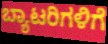
ಬ್ಯಾಟರಿಗಳಿಗೆ